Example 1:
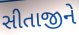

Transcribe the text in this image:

સીતાજીને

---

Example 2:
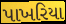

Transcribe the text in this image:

પાખરિયા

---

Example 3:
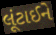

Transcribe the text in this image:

લૂંટાઈને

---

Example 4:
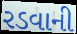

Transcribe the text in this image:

રડવાની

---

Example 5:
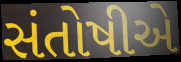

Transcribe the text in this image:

સંતોષીએ